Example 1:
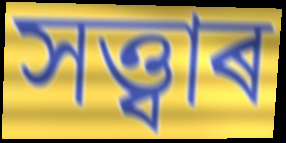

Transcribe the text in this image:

সত্ত্বাৰ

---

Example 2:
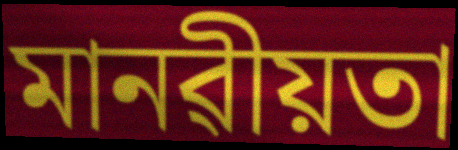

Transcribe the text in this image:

মানৱীয়তা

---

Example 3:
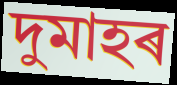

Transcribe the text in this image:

দুমাহৰ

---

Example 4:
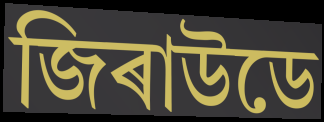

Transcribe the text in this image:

জিৰাউডে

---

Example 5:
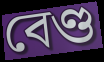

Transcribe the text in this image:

বেণ্ড